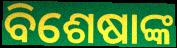
ବିଶେଷାଙ୍କ